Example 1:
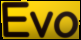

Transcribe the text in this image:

Evo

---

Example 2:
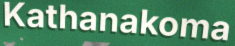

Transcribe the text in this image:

Kathanakoma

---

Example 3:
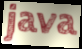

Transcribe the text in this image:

java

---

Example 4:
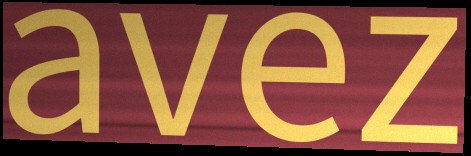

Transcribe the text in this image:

avez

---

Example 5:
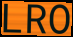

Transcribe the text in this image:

LRO